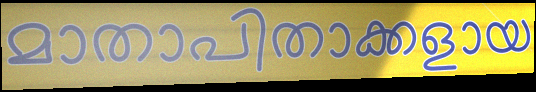
മാതാപിതാക്കളായ